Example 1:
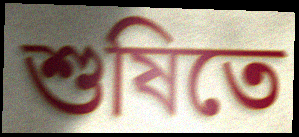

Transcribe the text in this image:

শুষিতে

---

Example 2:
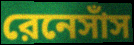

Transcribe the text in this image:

রেনেসাঁস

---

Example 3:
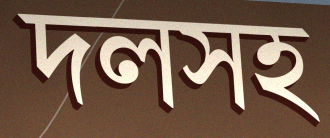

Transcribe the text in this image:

দলসহ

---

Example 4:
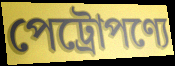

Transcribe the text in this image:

পেট্রোপণ্যে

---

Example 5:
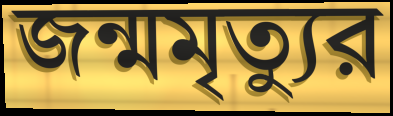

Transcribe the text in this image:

জন্মমৃত্যুর